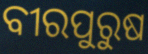
ବୀରପୁରୁଷ